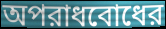
অপরাধবোধের